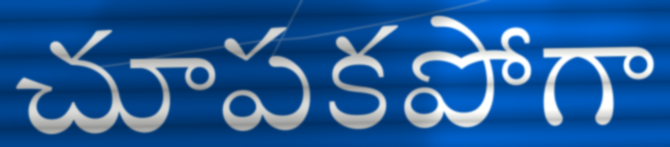
చూపకపోగా